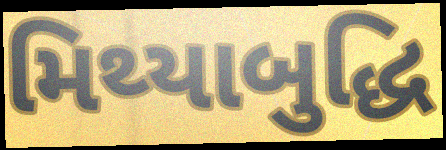
મિથ્યાબુદ્ધિ